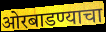
ओरबाडण्याचा